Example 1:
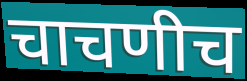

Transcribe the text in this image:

चाचणीच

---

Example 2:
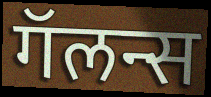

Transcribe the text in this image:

गॅलन्स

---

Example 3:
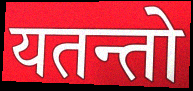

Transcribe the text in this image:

यतन्तो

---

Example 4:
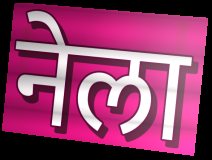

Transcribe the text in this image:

नेला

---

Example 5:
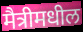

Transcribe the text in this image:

मैत्रीमधील